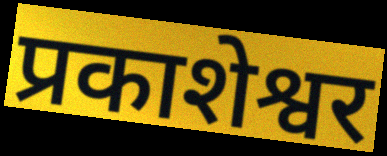
प्रकाशेश्वर